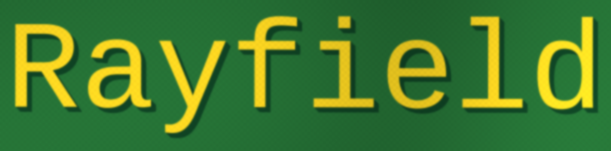
Rayfield